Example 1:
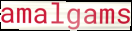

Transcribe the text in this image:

amalgams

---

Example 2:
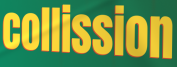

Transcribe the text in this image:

collission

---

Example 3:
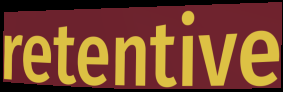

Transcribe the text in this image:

retentive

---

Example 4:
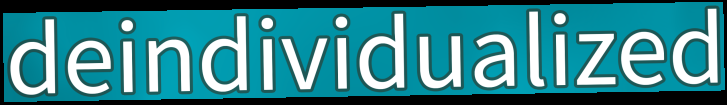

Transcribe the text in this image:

deindividualized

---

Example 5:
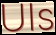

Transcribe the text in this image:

UIs